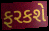
ફરકશે